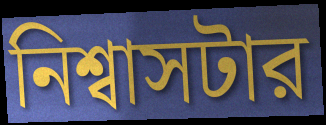
নিশ্বাসটার